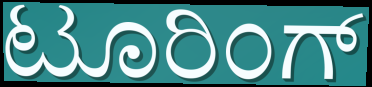
ಟೂರಿಂಗ್